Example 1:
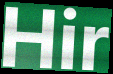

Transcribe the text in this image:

Hir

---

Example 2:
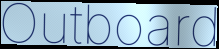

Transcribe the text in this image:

Outboard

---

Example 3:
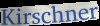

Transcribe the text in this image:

Kirschner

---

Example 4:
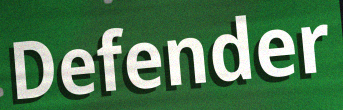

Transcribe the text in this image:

Defender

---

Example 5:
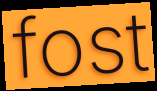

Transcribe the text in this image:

fost